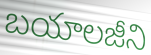
బయాలజీని